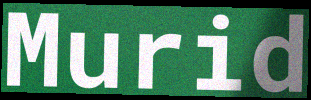
Murid